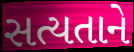
સત્યતાને